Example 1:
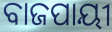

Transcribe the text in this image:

ବାଜପାୟୀ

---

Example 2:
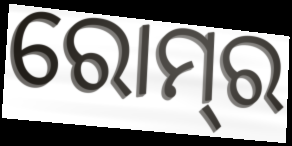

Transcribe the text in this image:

ରୋମ୍‌ର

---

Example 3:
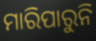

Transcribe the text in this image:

ମାରିପାରୁନି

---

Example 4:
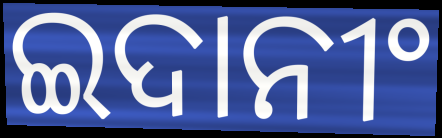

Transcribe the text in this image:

ଇଦାନୀଂ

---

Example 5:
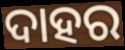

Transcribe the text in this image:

ଦାହର